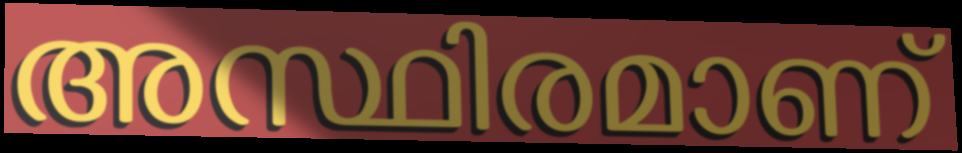
അസ്ഥിരമാണ്